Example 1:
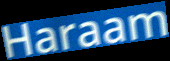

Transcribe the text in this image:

Haraam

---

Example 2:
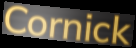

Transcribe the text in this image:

Cornick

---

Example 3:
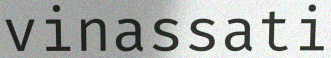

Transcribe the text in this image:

vinassati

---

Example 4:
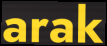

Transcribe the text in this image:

arak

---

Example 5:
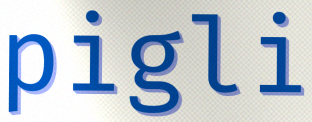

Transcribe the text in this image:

pigli